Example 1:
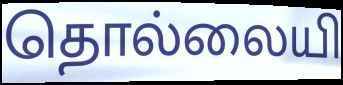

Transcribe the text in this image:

தொல்லையி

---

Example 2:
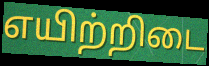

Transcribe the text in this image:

எயிற்றிடை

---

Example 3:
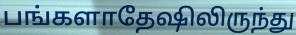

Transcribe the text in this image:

பங்களாதேஷிலிருந்து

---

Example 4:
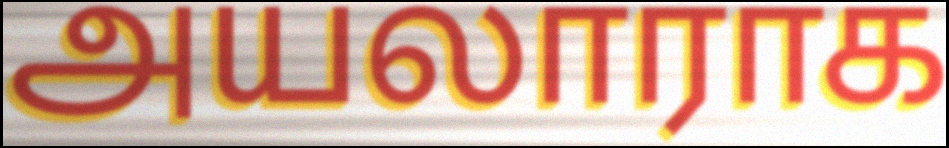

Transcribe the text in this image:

அயலாராக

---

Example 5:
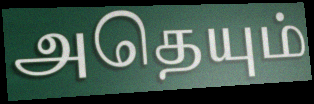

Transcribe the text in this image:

அதெயும்